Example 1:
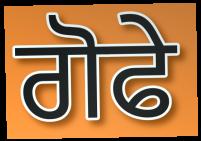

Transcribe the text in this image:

ਗੋਫੇ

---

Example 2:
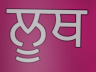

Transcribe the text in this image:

ਲੂਥ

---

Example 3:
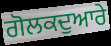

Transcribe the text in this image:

ਗੋਲਕਦੁਆਰੇ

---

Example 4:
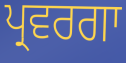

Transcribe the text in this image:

ਪ੍ਰਵਰਗਾ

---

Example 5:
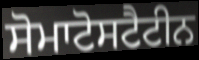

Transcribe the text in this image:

ਸੋਮਾਟੋਸਟੈਟੀਨ